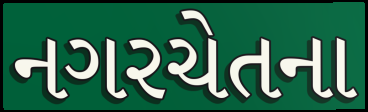
નગરચેતના